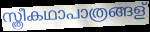
സ്ത്രീകഥാപാത്രങ്ങള്